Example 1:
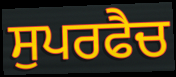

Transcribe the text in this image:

ਸੁਪਰਫੈਚ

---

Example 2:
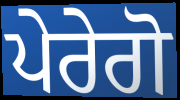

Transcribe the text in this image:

ਪੇਰੇਗੋ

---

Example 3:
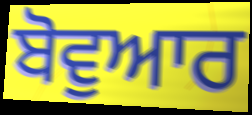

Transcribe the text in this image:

ਬੋਵੁਆਰ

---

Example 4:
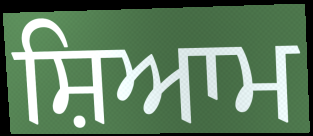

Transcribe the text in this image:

ਸ਼ਿਆਮ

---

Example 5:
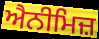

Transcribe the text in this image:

ਐਨੀਮਿਜ਼